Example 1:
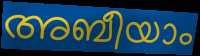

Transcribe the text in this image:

അബീയാം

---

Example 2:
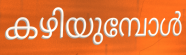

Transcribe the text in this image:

കഴിയുമ്പോൾ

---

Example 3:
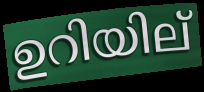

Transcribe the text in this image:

ഉറിയില്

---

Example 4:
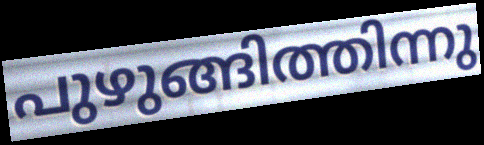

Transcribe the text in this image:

പുഴുങ്ങിത്തിന്നു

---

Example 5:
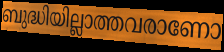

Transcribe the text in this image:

ബുദ്ധിയില്ലാത്തവരാണോ